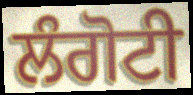
ਲੰਗੋਟੀ